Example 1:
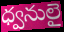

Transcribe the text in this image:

ధ్వనులై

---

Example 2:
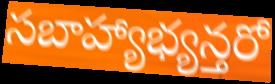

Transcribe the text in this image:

సబాహ్యాభ్యన్తరో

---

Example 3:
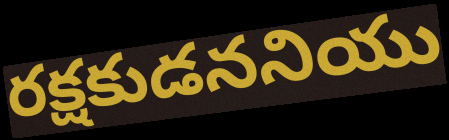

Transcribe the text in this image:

రక్షకుడననియు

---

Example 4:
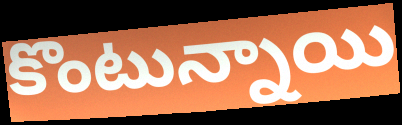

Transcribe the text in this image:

కొంటున్నాయి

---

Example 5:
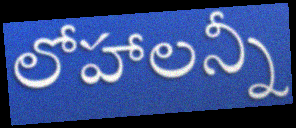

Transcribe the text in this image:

లోహాలన్నీ